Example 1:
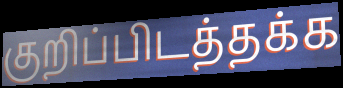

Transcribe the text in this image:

குறிப்பிடத்தக்க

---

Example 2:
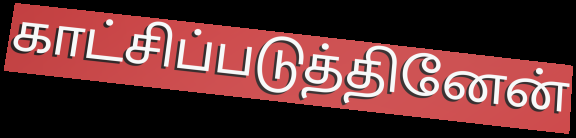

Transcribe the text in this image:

காட்சிப்படுத்தினேன்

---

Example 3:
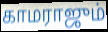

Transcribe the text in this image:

காமராஜும்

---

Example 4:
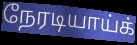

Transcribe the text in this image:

நேரடியாய்க்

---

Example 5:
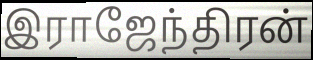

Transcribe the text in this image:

இராஜேந்திரன்